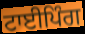
ਟਾਈਪਿੰਗ